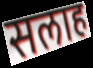
सलाह